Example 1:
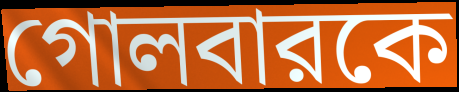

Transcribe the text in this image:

গোলবারকে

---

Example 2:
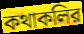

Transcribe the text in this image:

কথাকলির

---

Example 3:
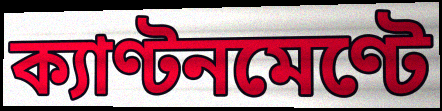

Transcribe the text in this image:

ক্যাণ্টনমেণ্টে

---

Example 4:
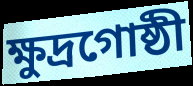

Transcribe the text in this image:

ক্ষুদ্রগোষ্ঠী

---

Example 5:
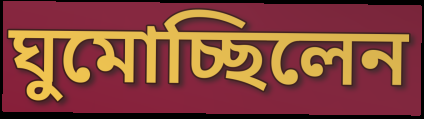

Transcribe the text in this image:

ঘুমোচ্ছিলেন